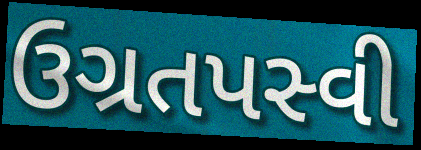
ઉગ્રતપસ્વી